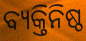
ବ୍ୟକ୍ତିନିଷ୍ଠ